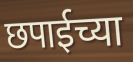
छपाईच्या